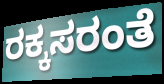
ರಕ್ಕಸರಂತೆ